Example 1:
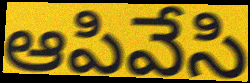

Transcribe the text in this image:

ఆపివేసి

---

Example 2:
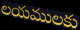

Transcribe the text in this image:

లయములకు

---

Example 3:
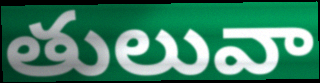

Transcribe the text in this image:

తులువా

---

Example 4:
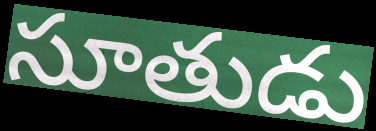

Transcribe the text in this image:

సూతుడు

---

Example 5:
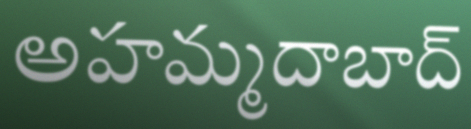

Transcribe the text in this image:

అహమ్మదాబాద్